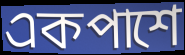
একপাশে